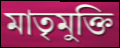
মাতৃমুক্তি